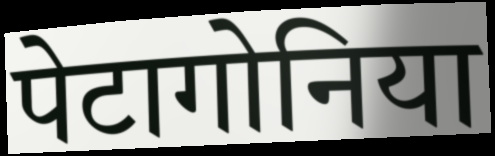
पेटागोनिया